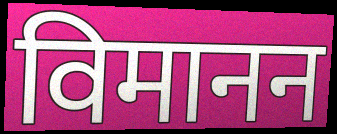
विमानन